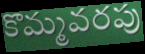
కొమ్మవరపు